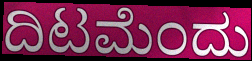
ದಿಟಮೆಂದು